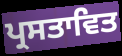
ਪ੍ਰਸਤਾਵਿਤ